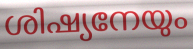
ശിഷ്യനേയും